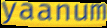
yaanum